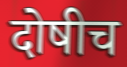
दोषीच